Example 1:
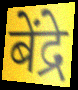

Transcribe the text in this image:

बेंद्रे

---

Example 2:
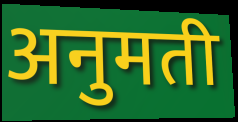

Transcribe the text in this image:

अनुमती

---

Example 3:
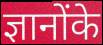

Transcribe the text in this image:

ज्ञानोंके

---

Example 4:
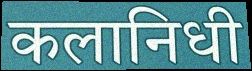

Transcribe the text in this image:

कलानिधी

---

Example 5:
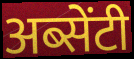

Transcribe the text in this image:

अब्सेंटी